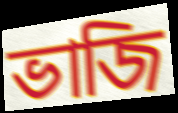
ভাজি